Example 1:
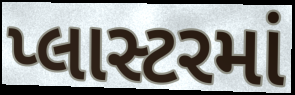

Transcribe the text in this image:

પ્લાસ્ટરમાં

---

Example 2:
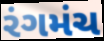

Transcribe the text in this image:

રંગમંચ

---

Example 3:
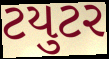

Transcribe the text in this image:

ટયુટર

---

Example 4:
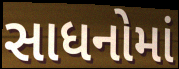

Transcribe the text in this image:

સાધનોમાં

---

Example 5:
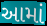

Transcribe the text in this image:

આમાં